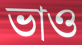
ভাও